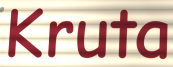
Kruta